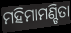
ମହିମାମଣ୍ଡିତା